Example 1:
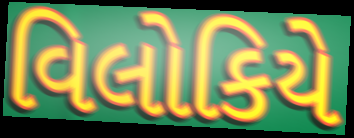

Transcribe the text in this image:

વિલોકિયે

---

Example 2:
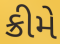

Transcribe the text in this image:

ક્રીમે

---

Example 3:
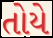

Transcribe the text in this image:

તોયે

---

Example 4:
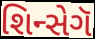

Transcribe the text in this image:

શિન્સેગૅ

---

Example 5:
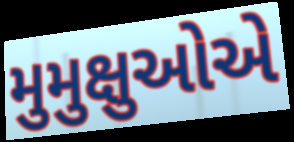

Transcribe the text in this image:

મુમુક્ષુઓએ